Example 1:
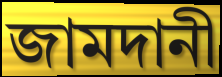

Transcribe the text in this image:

জামদানী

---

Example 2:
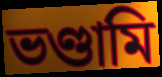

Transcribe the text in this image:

ভণ্ডামি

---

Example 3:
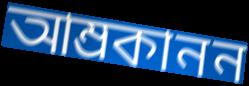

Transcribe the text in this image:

আম্রকানন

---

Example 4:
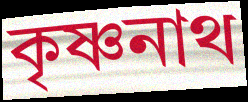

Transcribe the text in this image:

কৃষ্ণনাথ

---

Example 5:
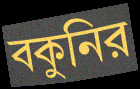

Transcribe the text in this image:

বকুনির